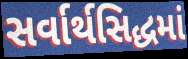
સર્વાર્થસિદ્ધમાં